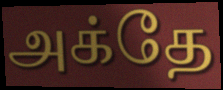
அக்தே